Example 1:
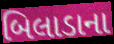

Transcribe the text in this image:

બિલાડાના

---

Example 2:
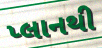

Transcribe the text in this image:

પ્લાનથી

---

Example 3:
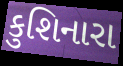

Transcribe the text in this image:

કુશિનારા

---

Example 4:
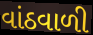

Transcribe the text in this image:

વાંઠવાળી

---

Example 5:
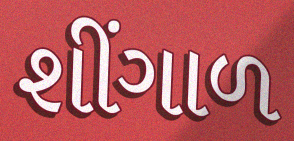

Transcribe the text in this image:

શીંગાળ